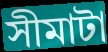
সীমাটা